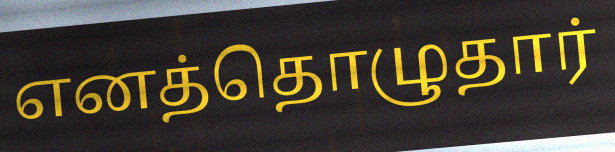
எனத்தொழுதார்